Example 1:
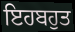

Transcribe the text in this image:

ਇਹਬਹੁਤ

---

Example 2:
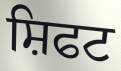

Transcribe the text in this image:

ਸ਼ਿਫਟ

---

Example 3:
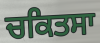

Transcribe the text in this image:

ਚਕਿਤਸਾ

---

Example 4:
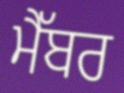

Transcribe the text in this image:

ਮੈੱਬਰ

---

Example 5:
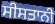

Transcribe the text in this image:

ਸੀਸਤਾਨੀ